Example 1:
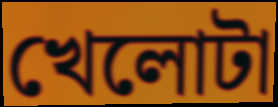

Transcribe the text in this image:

খেলোটা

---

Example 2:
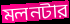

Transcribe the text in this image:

মলনটার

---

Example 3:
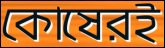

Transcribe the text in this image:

কোষেরই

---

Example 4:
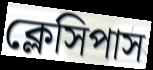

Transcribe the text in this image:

ক্লেসিপাস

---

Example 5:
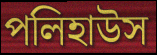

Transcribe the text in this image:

পলিহাউস